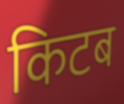
किटब